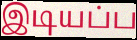
இடியப்ப